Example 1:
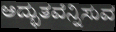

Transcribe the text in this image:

ಅದ್ಭುತವೆನ್ನಿಸುವ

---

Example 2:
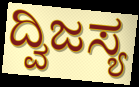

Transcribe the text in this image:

ದ್ವಿಜಸ್ಯ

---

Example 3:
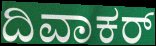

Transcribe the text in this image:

ದಿವಾಕರ್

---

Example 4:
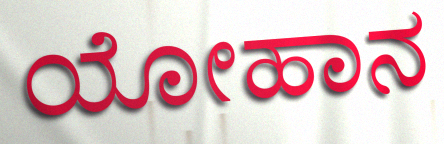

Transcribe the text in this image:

ಯೋಹಾನ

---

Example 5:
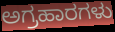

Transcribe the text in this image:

ಅಗ್ರಹಾರಗಳು